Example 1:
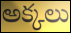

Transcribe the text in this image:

అక్కలు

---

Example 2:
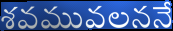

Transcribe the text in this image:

శవమువలననే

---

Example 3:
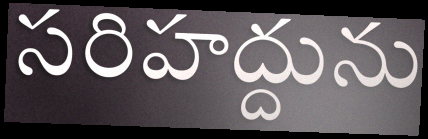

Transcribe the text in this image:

సరిహద్దును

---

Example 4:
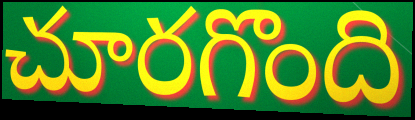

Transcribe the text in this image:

చూరగొంది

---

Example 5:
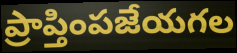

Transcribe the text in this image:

ప్రాప్తింపజేయగల